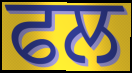
ਫਲ